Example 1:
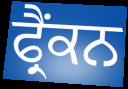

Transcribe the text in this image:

ਫ੍ਰੈਂਕਨ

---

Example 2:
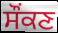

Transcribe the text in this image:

ਸੌਂਕਣ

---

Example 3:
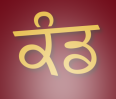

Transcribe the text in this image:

ਕੰਡ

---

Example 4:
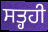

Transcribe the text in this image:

ਸਤ੍ਹਹੀ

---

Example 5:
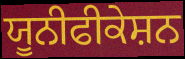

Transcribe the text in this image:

ਯੂਨੀਫੀਕੇਸ਼ਨ